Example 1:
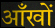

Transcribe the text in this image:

आँखों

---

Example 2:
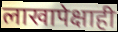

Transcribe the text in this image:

लाखापेक्षाही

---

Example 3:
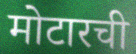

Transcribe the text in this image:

मोटारची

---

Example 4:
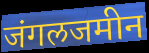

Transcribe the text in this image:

जंगलजमीन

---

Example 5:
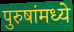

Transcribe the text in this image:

पुरुषांमध्ये